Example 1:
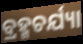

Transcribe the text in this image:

ବ୍ରହ୍ମଚର୍ଯ୍ୟା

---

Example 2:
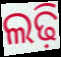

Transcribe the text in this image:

ଲଢ଼ି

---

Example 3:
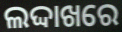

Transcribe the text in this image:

ଲଦ୍ଦାଖରେ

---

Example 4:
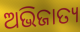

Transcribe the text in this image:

ଅଭିଜାତ୍ୟ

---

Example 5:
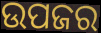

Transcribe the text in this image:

ଉପଜର